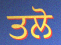
ਤਲੋ